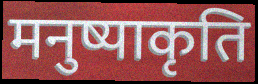
मनुष्याकृति